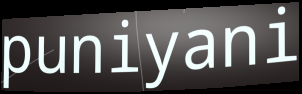
puniyani